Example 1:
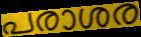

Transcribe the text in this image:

പരാശര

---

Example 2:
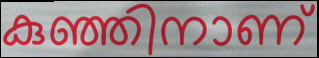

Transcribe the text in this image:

കുഞ്ഞിനാണ്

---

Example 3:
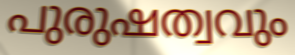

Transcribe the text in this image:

പുരുഷത്വവും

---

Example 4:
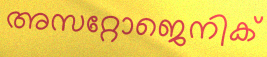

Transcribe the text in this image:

അസറ്റോജെനിക്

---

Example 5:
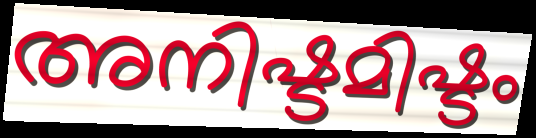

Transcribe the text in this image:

അനിഷ്ടമിഷ്ടം